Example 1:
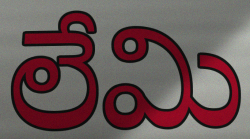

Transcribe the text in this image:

లేమి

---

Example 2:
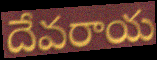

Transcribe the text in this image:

దేవరాయ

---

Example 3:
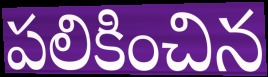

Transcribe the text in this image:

పలికించిన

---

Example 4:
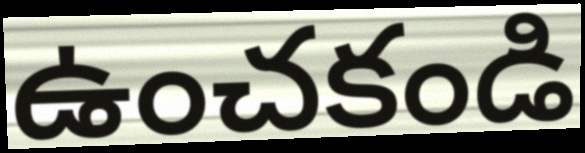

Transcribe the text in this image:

ఉంచకండి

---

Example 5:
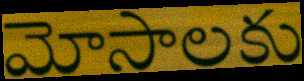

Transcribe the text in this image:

మోసాలకు